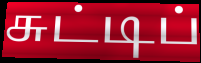
சுட்டிப்